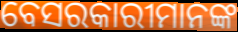
ବେସରକାରୀମାନଙ୍କ